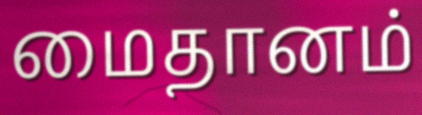
மைதானம்